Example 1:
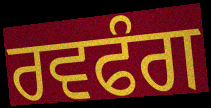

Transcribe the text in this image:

ਰਵਫੰਗ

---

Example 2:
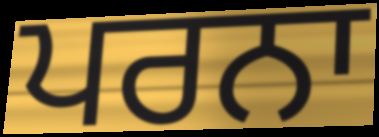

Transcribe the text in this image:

ਪਰਨਾ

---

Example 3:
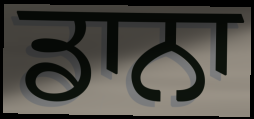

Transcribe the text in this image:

ਡਾਨਾ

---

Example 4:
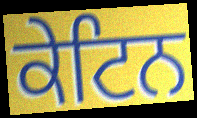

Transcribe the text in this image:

ਕੇਟਿਨ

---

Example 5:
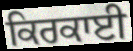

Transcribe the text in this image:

ਕਿਰਕਾਈ